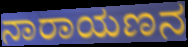
ನಾರಾಯಣನ